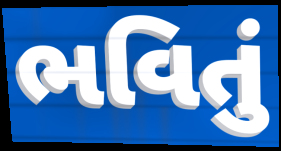
ભવિતું